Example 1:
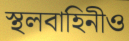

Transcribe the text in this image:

স্থলবাহিনীও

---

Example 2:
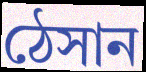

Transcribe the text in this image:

ঠেসান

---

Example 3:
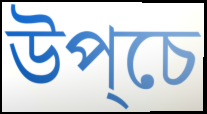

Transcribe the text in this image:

উপ্চে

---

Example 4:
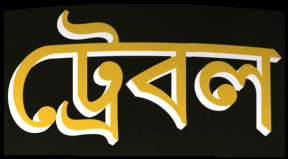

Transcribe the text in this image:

ট্রেবল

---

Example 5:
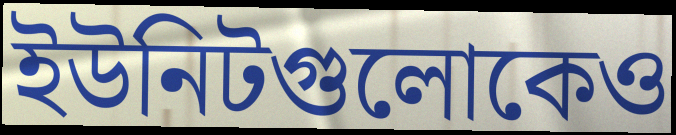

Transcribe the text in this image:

ইউনিটগুলোকেও